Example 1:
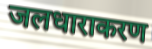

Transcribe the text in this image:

जलधाराकरण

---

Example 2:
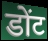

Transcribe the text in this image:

डोंट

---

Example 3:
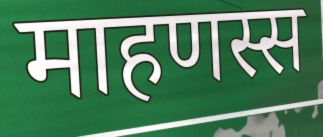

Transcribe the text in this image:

माहणस्स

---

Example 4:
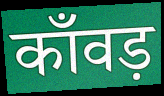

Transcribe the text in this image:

काँवड़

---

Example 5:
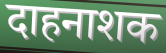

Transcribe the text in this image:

दाहनाशक